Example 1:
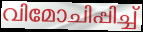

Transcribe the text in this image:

വിമോചിപ്പിച്ച്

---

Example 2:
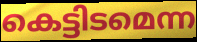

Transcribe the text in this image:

കെട്ടിടമെന്ന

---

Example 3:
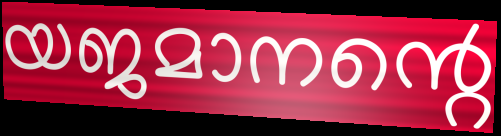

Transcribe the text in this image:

യജമാനന്റെ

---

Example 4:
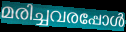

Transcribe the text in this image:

മരിച്ചവരപ്പോൾ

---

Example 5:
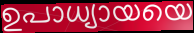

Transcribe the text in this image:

ഉപാധ്യായയെ